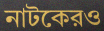
নাটকেরও